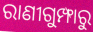
ରାଣୀଗୁମ୍ଫାରୁ